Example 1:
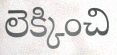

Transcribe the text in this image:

లెక్కించి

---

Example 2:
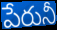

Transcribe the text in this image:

పేరునీ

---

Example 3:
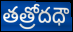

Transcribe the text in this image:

తత్రోదధౌ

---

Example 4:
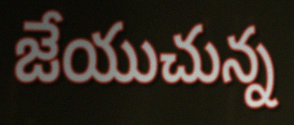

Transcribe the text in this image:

జేయుచున్న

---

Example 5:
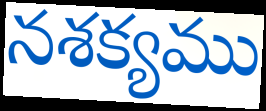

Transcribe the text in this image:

నశక్యము